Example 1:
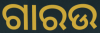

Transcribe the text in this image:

ଗାରଉ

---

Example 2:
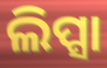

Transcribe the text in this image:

ଲିପ୍ସା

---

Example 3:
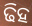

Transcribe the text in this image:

ଢିହ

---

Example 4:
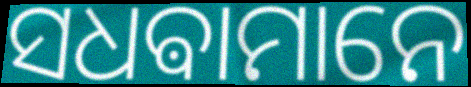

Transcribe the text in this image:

ସଧଵାମାନେ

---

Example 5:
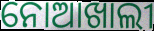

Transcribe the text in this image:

ନୋଆଖାଲୀ